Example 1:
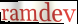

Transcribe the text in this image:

ramdev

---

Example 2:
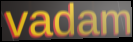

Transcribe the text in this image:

vadam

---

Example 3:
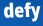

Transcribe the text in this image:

defy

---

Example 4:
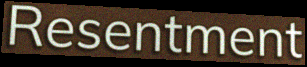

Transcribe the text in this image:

Resentment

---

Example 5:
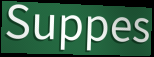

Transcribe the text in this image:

Suppes